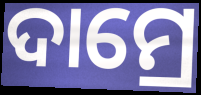
ଦାମ୍ରେ